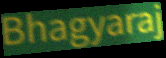
Bhagyaraj